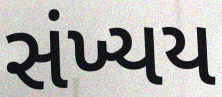
સંખ્યય